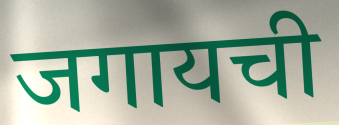
जगायची